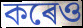
কৰেও